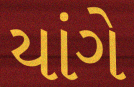
યાંગે